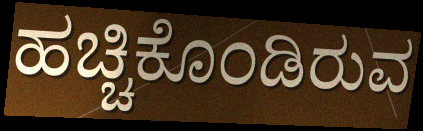
ಹಚ್ಚಿಕೊಂಡಿರುವ